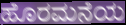
ಹೊರಮನೆಯ